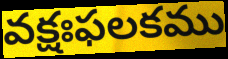
వక్షఃఫలకము